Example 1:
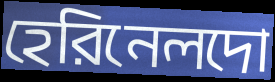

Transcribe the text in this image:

হেরিনেলদো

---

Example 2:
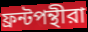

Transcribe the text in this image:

ফ্রন্টপন্থীরা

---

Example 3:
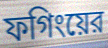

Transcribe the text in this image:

ফগিংয়ের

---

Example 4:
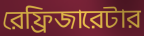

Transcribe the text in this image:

রেফ্রিজারেটার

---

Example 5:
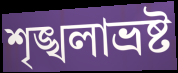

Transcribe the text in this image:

শৃঙ্খলাভ্রষ্ট